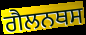
ਗੈਲਨਥਸ